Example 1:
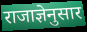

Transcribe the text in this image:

राजाज्ञेनुसार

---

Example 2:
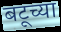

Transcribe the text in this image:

बटूच्या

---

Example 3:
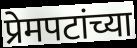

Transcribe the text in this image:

प्रेमपटांच्या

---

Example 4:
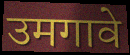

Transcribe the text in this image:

उमगावे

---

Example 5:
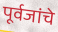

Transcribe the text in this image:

पूर्वजांचे